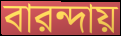
বারন্দায়